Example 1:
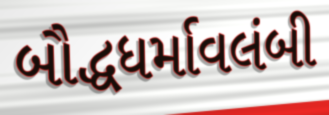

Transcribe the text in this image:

બૌદ્ધધર્માવલંબી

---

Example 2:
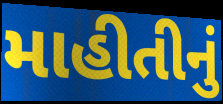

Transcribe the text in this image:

માહીતીનું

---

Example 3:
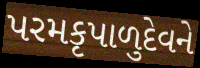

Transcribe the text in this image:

પરમકૃપાળુદેવને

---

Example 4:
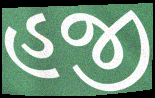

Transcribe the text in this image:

હજી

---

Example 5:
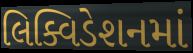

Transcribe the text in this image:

લિક્વિડેશનમાં